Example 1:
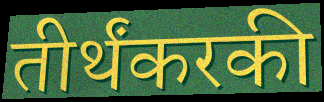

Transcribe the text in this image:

तीर्थंकरकी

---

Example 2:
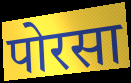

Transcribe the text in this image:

पोरसा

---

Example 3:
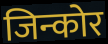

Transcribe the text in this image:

जिन्कोर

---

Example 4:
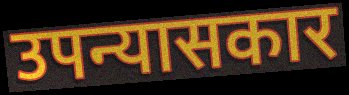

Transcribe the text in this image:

उपन्यासकार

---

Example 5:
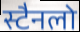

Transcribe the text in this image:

स्टैनलो